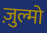
ज़ुल्मो